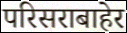
परिसराबाहेर